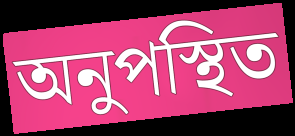
অনুপস্থিত